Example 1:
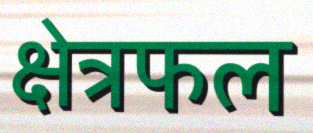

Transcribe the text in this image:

क्षेत्रफल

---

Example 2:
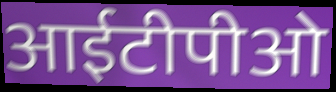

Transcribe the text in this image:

आईटीपीओ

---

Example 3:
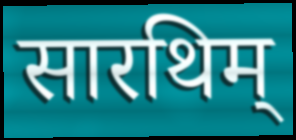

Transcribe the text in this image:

सारथिम्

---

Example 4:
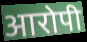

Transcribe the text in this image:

आरोपी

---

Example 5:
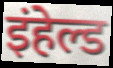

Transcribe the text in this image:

इंहेल्ड